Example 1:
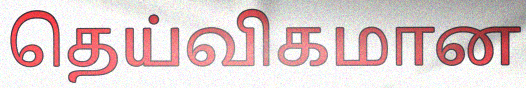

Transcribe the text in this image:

தெய்விகமான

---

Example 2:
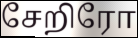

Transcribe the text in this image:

சேறிரோ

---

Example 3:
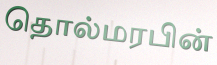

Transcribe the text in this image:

தொல்மரபின்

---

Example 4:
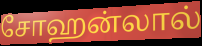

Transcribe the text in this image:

சோஹன்லால்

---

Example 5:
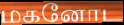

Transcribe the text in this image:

மகனோட